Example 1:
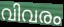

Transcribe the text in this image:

വിവരം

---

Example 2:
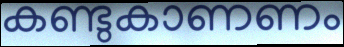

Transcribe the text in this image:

കണ്ടുകാണണം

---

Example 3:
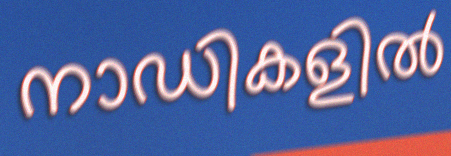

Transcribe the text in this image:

നാഡികളിൽ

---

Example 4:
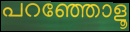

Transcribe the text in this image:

പറഞ്ഞോളൂ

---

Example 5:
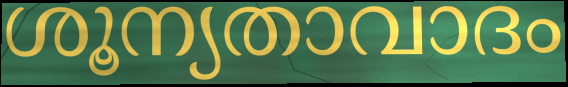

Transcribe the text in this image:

ശൂന്യതാവാദം